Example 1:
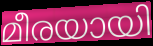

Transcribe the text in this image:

മീരയായി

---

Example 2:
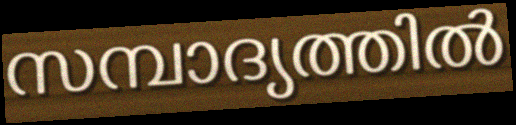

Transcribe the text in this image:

സമ്പാദ്യത്തിൽ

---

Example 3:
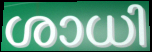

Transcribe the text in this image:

ശാധി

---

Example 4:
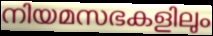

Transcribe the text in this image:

നിയമസഭകളിലും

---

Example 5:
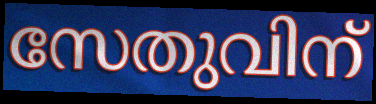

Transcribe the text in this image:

സേതുവിന്